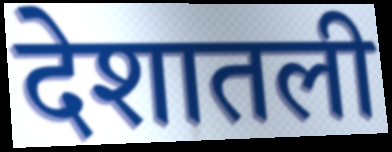
देशातली